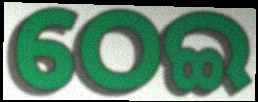
ଠେଇ